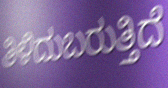
ತಿಳಿದುಬರುತ್ತಿದೆ